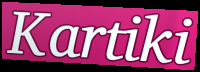
Kartiki